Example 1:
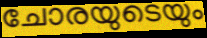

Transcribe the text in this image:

ചോരയുടെയും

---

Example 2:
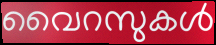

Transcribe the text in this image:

വൈറസുകൾ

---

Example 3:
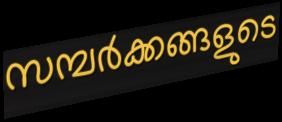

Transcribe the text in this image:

സമ്പർക്കങ്ങളുടെ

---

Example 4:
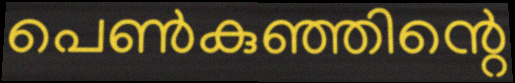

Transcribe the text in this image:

പെൺകുഞ്ഞിന്റെ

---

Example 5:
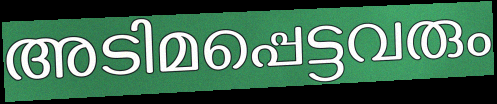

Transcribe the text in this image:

അടിമപ്പെട്ടവരും